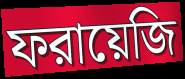
ফরায়েজি